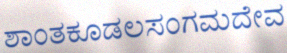
ಶಾಂತಕೂಡಲಸಂಗಮದೇವ